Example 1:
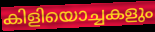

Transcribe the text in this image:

കിളിയൊച്ചകളും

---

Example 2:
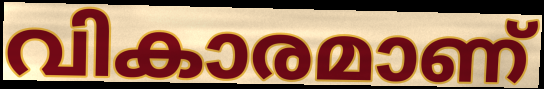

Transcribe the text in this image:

വികാരമാണ്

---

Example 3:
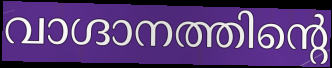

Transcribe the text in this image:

വാഗ്ദാനത്തിന്റെ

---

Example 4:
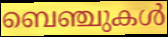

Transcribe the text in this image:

ബെഞ്ചുകൾ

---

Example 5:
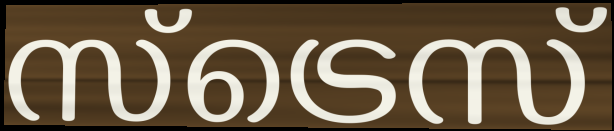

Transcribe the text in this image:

സ്ട്രെസ്